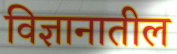
विज्ञानातील